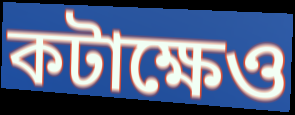
কটাক্ষেও